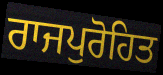
ਰਾਜਪੁਰੋਹਿਤ